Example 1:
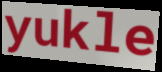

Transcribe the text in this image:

yukle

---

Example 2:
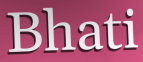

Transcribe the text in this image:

Bhati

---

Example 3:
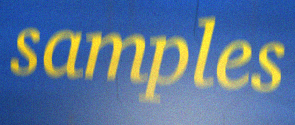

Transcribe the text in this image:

samples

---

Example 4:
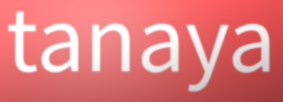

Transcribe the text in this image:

tanaya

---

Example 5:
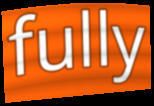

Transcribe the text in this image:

fully